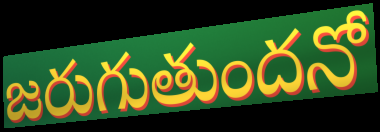
జరుగుతుందనో